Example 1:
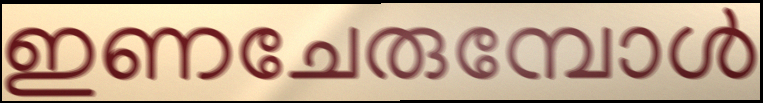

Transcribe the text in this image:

ഇണചേരുമ്പോൾ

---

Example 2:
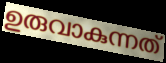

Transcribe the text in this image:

ഉരുവാകുന്നത്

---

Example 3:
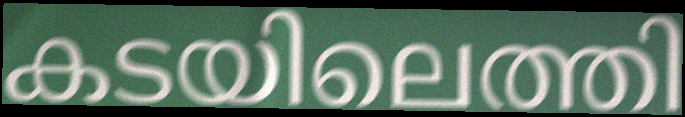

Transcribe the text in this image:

കടയിലെത്തി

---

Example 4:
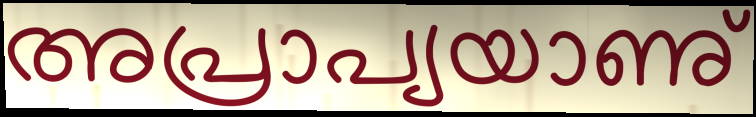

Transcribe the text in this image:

അപ്രാപ്യയാണു്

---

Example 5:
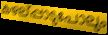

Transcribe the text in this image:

കഴല്പ്പാടുപോലും